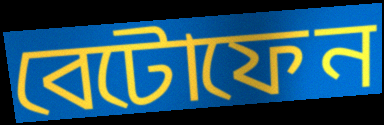
বেটোফেন